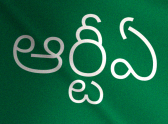
ఆర్టీఏ